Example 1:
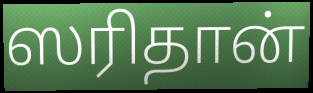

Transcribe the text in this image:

ஸரிதான்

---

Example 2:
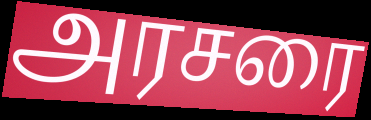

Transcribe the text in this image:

அரசரை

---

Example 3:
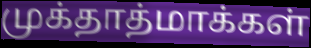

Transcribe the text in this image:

முக்தாத்மாக்கள்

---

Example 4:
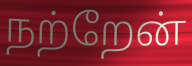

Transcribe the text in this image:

நற்றேன்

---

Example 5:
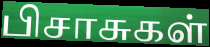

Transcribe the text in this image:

பிசாசுகள்